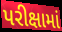
પરીક્ષામાં